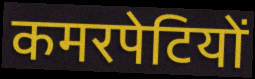
कमरपेटियों